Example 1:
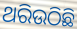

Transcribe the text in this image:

ଥରିଉଠିଛି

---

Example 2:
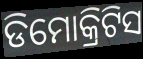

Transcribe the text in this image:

ଡିମୋକ୍ରିଟିସ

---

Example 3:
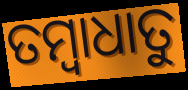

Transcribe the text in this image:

ତମ୍ବାଧାତୁ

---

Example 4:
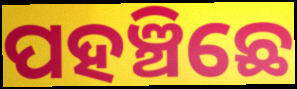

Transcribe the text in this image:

ପହଞ୍ଚିଛେ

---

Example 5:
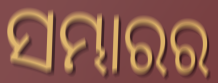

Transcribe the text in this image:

ସମ୍ଭାରର